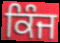
ਕਿੰਜ